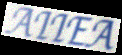
AIIEA